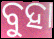
ବୁହା